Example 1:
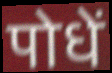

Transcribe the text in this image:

पोधें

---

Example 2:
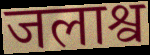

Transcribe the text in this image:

जलाश्व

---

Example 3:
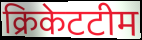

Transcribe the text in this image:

क्रिकेटटीम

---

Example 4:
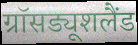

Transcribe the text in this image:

ग्रॉसड्यूशलैंड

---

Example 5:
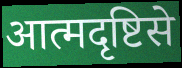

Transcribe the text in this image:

आत्मदृष्टिसे